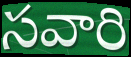
సవారి